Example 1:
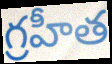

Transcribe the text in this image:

గ్రహీత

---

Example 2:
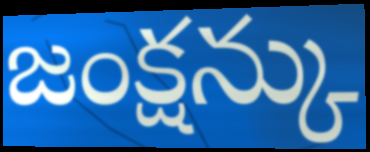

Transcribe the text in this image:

జంక్షన్కు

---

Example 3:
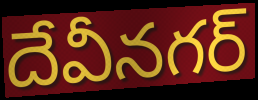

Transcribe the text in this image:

దేవీనగర్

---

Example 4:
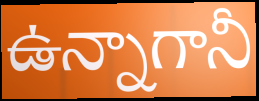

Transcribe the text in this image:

ఉన్నాగానీ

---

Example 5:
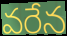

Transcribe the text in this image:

వరేన